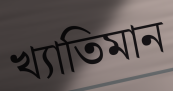
খ্যাতিমান